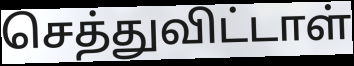
செத்துவிட்டாள்